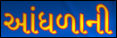
આંધળાની